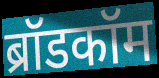
ब्रॉडकॉम